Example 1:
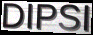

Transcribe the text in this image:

DIPSI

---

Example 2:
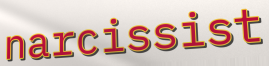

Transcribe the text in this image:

narcissist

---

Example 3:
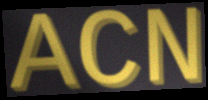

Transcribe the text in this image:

ACN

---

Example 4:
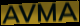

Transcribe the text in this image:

AVMA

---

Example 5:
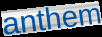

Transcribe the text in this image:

anthem